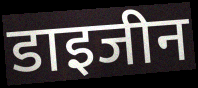
डाइजीन